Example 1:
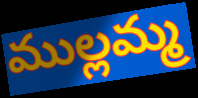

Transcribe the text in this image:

ముల్లమ్మ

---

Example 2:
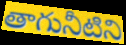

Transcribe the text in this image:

తాగునీటిని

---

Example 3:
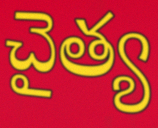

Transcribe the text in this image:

చైత్య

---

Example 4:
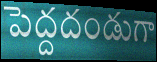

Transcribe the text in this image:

పెద్దదండుగా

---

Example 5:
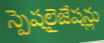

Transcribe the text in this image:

స్పెషలైజేషన్లు